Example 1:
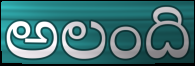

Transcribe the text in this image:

అలంది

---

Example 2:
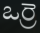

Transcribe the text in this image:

ఒర్రె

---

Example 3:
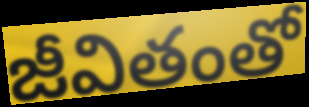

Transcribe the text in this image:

జీవితంతో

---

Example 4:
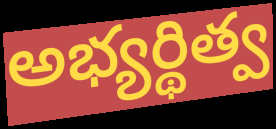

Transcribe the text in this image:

అభ్యర్థిత్వ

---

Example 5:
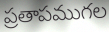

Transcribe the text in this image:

ప్రతాపముగల